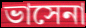
ভাসেনা